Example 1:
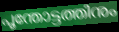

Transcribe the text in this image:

പൂന്തോട്ടത്തിനും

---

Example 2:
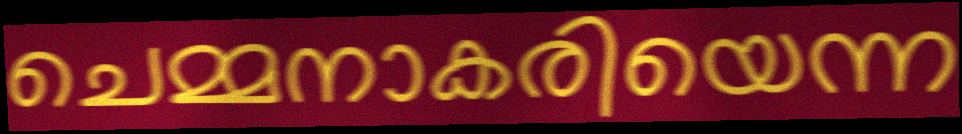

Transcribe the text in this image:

ചെമ്മനാകരിയെന്ന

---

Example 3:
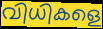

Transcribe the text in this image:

വിധികളെ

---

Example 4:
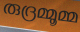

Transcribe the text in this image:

രുദ്രമ്മൂമ്മ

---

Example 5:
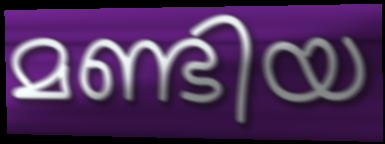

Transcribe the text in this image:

മണ്ടിയ